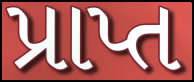
પ્રાપ્‍ત